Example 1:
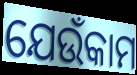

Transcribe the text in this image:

ଯେଉଁକାମ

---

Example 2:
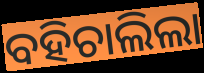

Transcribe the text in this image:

ବହିଚାଲିଲା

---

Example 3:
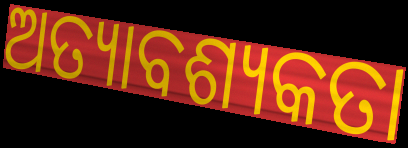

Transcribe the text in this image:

ଅତ୍ୟାବଶ୍ୟକତା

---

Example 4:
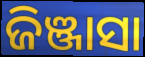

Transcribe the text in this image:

ଜିଞ୍ଜାସା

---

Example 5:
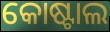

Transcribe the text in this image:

କୋଷ୍ଟାଲ